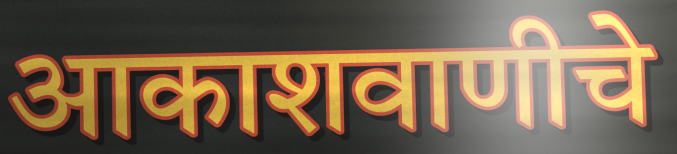
आकाशवाणीचे